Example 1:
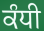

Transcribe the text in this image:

ਕੰਧੀ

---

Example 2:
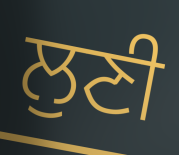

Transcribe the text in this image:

ਲੁਣੀ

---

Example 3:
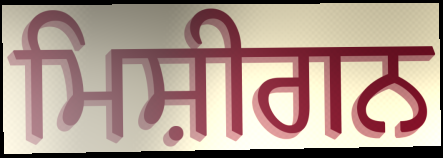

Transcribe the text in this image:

ਮਿਸ਼ੀਗਨ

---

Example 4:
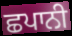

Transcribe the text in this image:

ਛਪਾਨੀ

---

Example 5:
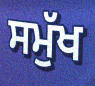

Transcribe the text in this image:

ਸਮੁੱਖ